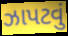
ઝાપટવું